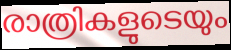
രാത്രികളുടെയും